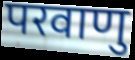
परवाणु